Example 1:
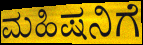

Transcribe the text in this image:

ಮಹಿಷನಿಗೆ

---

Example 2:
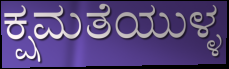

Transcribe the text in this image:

ಕ್ಷಮತೆಯುಳ್ಳ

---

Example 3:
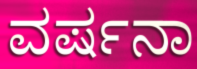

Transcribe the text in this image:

ವರ್ಷನಾ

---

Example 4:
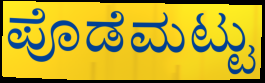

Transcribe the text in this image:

ಪೊಡೆಮಟ್ಟು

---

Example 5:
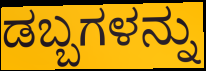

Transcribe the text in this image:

ಡಬ್ಬಗಳನ್ನು